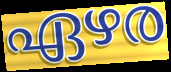
ഏഴര